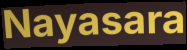
Nayasara